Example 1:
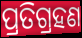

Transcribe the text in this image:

ପ୍ରତିଗ୍ରହଣ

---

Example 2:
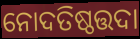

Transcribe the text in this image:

ନୋଦତିଷ୍ଠତ୍ତଦା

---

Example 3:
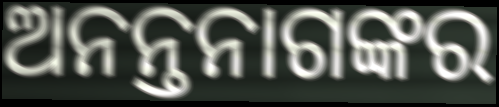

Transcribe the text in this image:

ଅନନ୍ତନାଗଙ୍କର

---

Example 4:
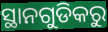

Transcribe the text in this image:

ସ୍ଥାନଗୁଡିକରୁ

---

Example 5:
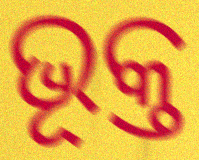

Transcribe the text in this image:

ଭୂକ୍ତ